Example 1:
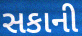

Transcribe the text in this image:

સકાની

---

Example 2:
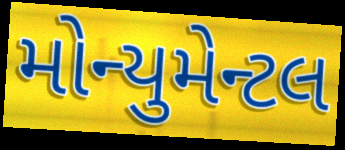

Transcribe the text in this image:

મોન્યુમેન્ટલ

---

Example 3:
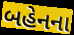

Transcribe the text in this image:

બહેનના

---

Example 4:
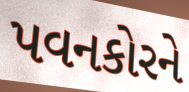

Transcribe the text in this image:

પવનકોરને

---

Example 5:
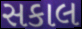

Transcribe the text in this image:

સકાલ